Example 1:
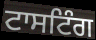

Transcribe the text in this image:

ਟਾਸਟਿੰਗ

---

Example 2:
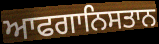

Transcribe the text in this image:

ਆਫਗਾਨਿਸਤਾਨ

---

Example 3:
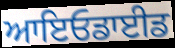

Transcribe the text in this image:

ਆਇਓਡਾਈਡ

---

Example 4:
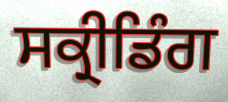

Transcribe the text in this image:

ਸਕ੍ਰੀਡਿੰਗ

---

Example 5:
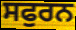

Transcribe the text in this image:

ਸਫੁਰਨ